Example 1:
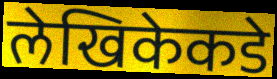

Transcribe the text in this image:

लेखिकेकडे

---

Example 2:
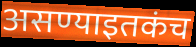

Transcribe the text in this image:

असण्याइतकंच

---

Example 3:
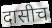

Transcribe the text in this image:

दासीच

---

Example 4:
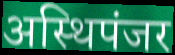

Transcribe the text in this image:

अस्थिपंजर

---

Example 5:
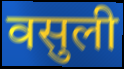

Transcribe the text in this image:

वसुली